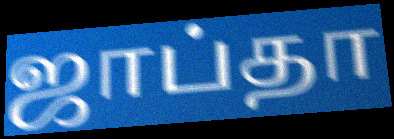
ஜாப்தா